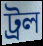
ট্রল